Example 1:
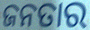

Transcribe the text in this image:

ଜନତାର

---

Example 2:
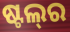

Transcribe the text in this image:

ଷ୍ଟଲ୍‌ର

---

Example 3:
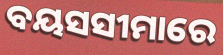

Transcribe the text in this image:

ବୟସସୀମାରେ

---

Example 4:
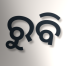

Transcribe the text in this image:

ରୁବି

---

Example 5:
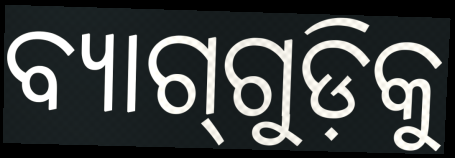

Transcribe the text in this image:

ବ୍ୟାଗ୍‍ଗୁଡ଼ିକୁ